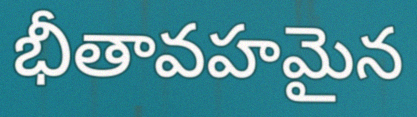
భీతావహమైన